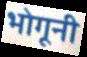
भोगूनी